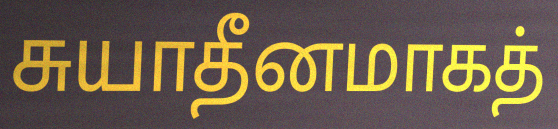
சுயாதீனமாகத்